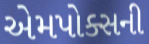
એમપોક્સની